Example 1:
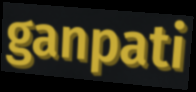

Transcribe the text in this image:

ganpati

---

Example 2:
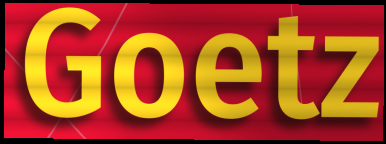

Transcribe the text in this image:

Goetz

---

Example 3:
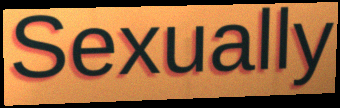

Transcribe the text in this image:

Sexually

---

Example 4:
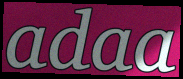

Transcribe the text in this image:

adaa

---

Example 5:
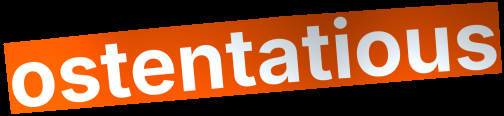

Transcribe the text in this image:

ostentatious